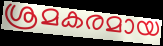
ശ്രമകരമായ